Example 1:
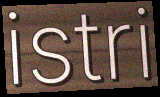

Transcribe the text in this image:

istri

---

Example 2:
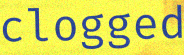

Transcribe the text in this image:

clogged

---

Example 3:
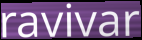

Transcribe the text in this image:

ravivar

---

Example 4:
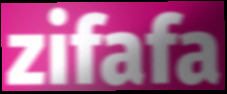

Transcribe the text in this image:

zifafa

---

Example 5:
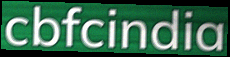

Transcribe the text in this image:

cbfcindia